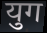
युग